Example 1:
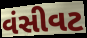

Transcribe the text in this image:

વંસીવટ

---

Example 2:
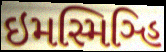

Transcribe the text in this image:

ઇમસ્મિઞ્હિ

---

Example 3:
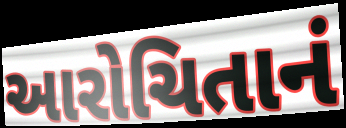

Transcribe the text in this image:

આરોચિતાનં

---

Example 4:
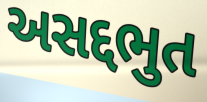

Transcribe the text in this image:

અસદ્દભુત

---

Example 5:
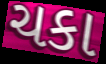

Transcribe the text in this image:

ચકા